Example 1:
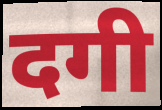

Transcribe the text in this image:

दगी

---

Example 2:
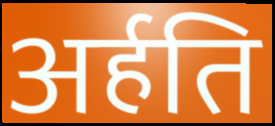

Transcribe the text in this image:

अर्हति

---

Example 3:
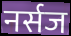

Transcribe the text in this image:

नर्सज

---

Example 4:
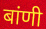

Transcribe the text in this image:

बांणी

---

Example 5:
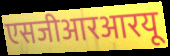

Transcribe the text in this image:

एसजीआरआरयू